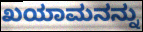
ಖಯಾಮನನ್ನು